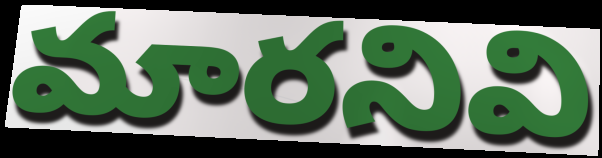
మారనివి